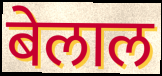
बेलाल